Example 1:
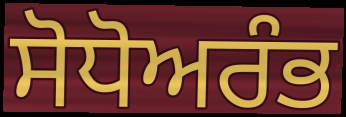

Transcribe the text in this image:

ਸੋਧੋਅਰੰਭ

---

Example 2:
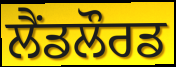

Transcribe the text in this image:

ਲੈਂਡਲੌਰਡ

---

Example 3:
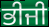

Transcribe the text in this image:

ਭੀਜੀ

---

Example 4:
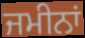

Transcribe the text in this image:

ਜਮੀਨਾਂ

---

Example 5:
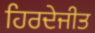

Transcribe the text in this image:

ਹਿਰਦੇਜੀਤ